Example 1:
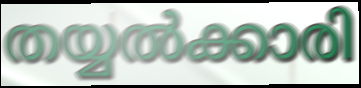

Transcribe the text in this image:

തയ്യൽക്കാരി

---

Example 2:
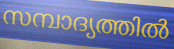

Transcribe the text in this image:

സമ്പാദ്യത്തിൽ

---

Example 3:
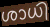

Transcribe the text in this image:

ശാധി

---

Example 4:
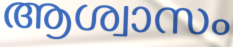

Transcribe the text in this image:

ആശ്വാസം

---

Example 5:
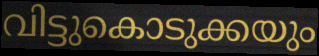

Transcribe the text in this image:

വിട്ടുകൊടുക്കയും